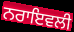
ਨਰਾਇਵਲੀ